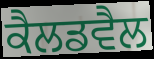
ਕੈਲਡਵੈਲ